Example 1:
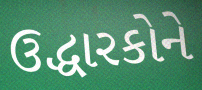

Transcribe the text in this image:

ઉદ્ધારકોને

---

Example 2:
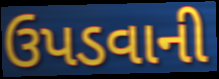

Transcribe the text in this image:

ઉપડવાની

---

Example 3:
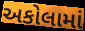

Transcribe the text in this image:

અકોલામાં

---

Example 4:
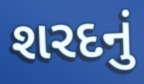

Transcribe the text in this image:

શરદનું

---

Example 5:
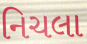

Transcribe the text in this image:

નિચલા